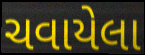
ચવાયેલા